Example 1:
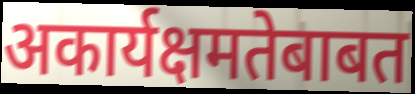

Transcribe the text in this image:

अकार्यक्षमतेबाबत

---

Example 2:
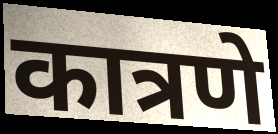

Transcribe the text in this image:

कात्रणे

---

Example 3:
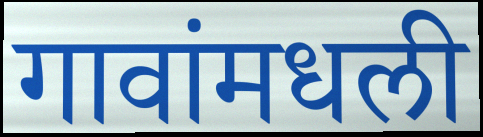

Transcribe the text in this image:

गावांमधली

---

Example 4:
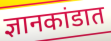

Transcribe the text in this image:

ज्ञानकांडात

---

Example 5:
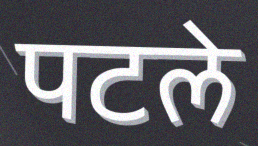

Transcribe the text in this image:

पटले